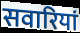
सवारियां